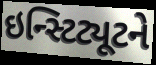
ઇન્સ્ટિટ્યૂટને